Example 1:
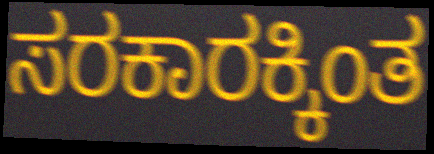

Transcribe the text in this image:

ಸರಕಾರಕ್ಕಿಂತ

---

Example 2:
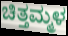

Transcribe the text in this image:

ಚಿತ್ತಮ್ಮಳ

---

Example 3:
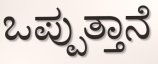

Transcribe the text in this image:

ಒಪ್ಪುತ್ತಾನೆ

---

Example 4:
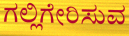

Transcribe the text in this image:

ಗಲ್ಲಿಗೇರಿಸುವ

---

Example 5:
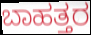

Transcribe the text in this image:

ಬಾಹತ್ತರ